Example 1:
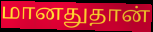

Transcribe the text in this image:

மானதுதான்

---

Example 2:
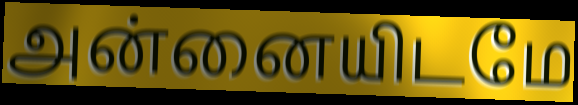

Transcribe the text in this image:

அன்னையிடமே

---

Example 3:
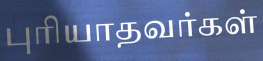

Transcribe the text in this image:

புரியாதவர்கள்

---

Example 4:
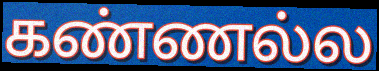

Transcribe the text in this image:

கண்ணல்ல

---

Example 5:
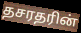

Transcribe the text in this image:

தசரதரின்